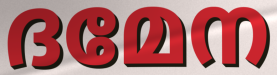
ദമേന